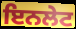
ਇਨਲੇਟ